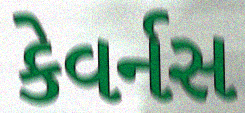
કેવર્નસ